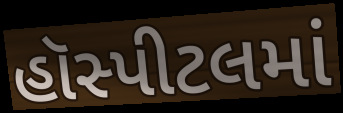
હૉસ્પીટલમાં